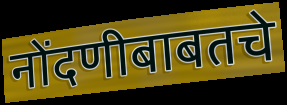
नोंदणीबाबतचे